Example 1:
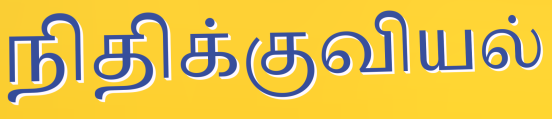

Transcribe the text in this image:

நிதிக்குவியல்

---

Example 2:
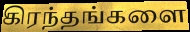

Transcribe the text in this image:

கிரந்தங்களை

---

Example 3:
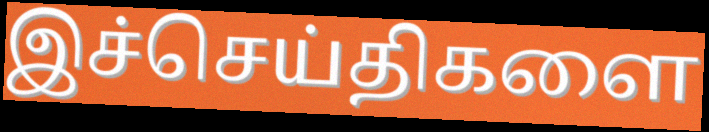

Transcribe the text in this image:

இச்செய்திகளை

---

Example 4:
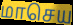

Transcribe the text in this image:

மாசெய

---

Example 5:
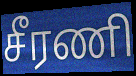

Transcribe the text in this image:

சீரணி